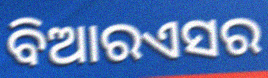
ବିଆରଏସର